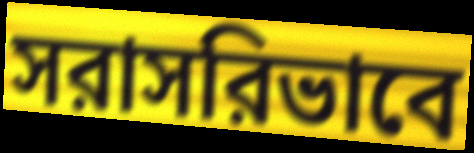
সরাসরিভাবে